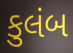
કુલંબ